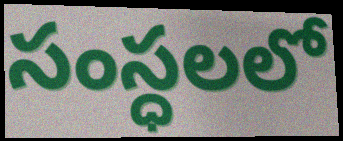
సంస్ధలలో